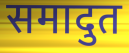
समादुत